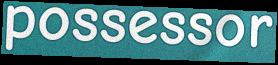
possessor